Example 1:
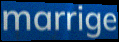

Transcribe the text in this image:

marrige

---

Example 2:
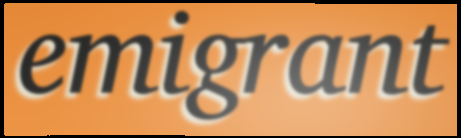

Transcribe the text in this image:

emigrant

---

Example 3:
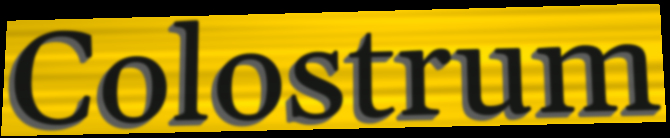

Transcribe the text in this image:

Colostrum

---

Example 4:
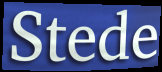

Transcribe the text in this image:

Stede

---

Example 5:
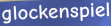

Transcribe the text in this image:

glockenspiel